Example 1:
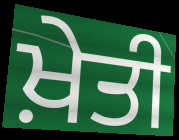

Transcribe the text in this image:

ਖ਼ੇਤੀ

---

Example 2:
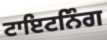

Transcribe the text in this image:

ਟਾਇਟਨਿੰਗ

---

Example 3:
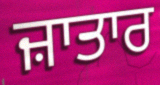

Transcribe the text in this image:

ਜ਼ਾਤਾਰ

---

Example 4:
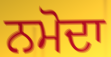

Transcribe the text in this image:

ਨਮੋਦਾ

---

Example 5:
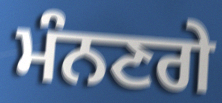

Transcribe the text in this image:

ਮੰਨਣਗੇ